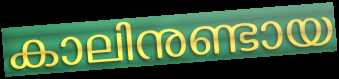
കാലിനുണ്ടായ